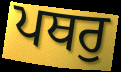
ਪਥਰੁ